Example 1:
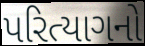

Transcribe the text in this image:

પરિત્યાગનો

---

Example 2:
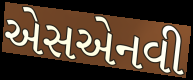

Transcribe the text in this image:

એસએનવી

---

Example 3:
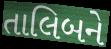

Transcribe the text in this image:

તાલિબને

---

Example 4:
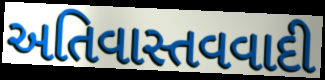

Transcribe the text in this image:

અતિવાસ્તવવાદી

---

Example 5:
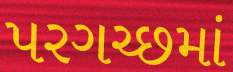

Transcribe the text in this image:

પરગચ્છમાં